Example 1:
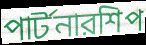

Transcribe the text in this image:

পার্টনারশিপ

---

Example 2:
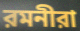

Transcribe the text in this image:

রমনীরা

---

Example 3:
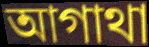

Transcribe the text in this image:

আগাথা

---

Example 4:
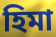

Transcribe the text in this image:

হিমা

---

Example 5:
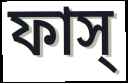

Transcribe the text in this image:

ফাস্